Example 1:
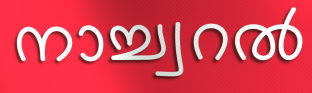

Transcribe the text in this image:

നാച്ച്വറൽ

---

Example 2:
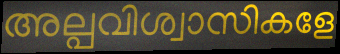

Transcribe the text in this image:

അല്പവിശ്വാസികളേ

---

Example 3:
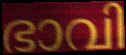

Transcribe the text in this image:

ഭാവി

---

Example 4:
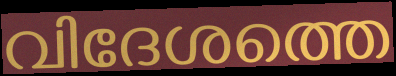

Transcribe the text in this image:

വിദേശത്തെ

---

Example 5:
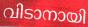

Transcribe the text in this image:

വിടാനായി